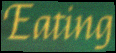
Eating